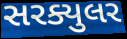
સરક્યુલર